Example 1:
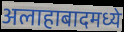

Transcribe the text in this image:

अलाहाबादमध्ये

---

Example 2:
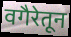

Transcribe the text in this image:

वगैरेतून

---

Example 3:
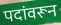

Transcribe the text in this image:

पदांवरून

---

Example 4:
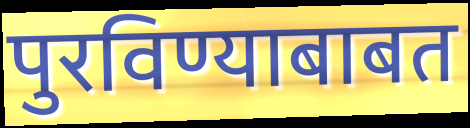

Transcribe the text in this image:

पुरविण्याबाबत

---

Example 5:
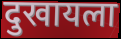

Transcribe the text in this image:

दुखायला